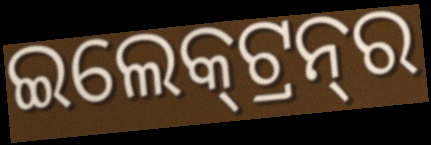
ଇଲେକ୍‍ଟ୍ରନ୍‍ର